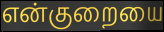
என்குறையை